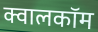
क्वालकॉम